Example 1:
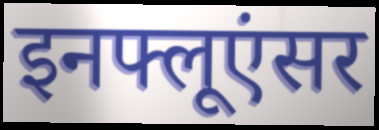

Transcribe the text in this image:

इनफ्लूएंसर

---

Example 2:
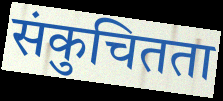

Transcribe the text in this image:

संकुचितता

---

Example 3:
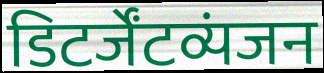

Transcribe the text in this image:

डिटर्जेंटव्यंजन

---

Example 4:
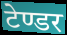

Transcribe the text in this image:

टेण्‍डर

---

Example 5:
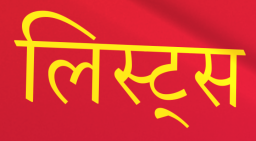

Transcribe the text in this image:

लिस्ट्स